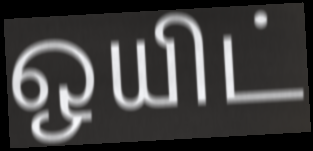
ஒயிட்